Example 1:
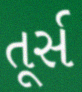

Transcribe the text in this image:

તૂર્સ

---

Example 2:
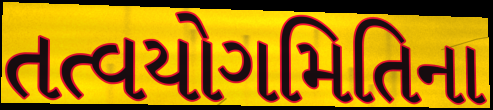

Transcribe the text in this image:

તત્વયોગમિતિના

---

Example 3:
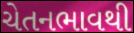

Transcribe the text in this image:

ચેતનભાવથી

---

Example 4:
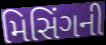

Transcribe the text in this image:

મિસિંગની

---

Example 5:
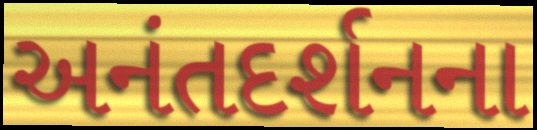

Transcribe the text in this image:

અનંતદર્શનના